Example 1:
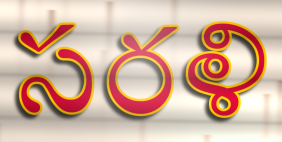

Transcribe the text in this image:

సరళి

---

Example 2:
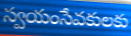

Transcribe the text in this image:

స్వయంసేవకులకు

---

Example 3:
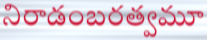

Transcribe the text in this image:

నిరాడంబరత్వమూ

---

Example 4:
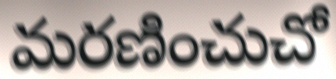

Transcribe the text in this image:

మరణించుచో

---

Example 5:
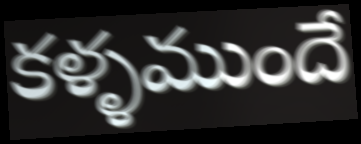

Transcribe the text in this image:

కళ్ళముందే